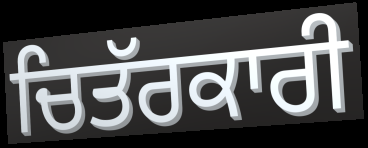
ਚਿਤੱਰਕਾਰੀ